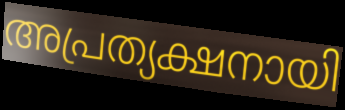
അപ്രത്യക്ഷനായി